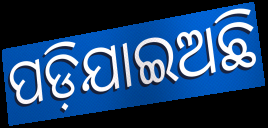
ପଡ଼ିଯାଇଅଛି